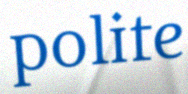
polite